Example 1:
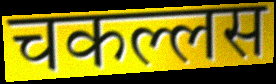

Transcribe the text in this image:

चकल्लस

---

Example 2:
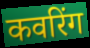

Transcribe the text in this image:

कवरिंग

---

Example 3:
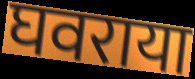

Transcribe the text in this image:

घवराया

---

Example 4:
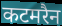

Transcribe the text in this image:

कटमरैन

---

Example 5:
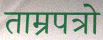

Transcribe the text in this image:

ताम्रपत्रो